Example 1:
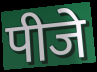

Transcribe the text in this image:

पीजे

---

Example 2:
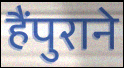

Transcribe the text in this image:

हैंपुराने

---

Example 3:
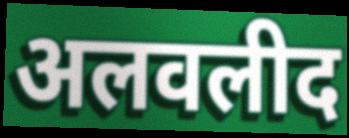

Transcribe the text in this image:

अलवलीद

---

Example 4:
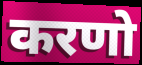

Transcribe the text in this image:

करणो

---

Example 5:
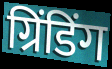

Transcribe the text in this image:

ग्रिंडिंग